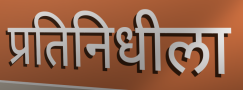
प्रतिनिधीला